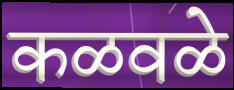
कळवळे